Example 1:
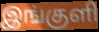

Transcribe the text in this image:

இங்குளி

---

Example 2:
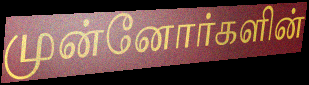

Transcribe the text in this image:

முன்னோர்களின்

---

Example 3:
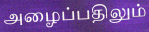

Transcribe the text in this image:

அழைப்பதிலும்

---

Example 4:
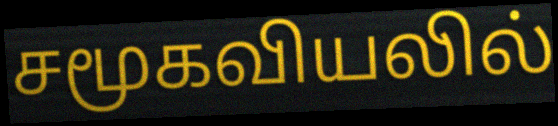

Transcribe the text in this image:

சமூகவியலில்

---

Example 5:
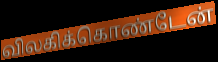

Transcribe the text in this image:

விலகிக்கொண்டேன்